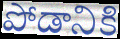
పోడానికి